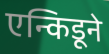
एन्किडूने